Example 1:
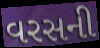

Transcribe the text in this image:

વરસની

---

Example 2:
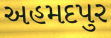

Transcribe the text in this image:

અહમદપુર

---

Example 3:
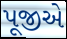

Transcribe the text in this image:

પૂજીએ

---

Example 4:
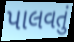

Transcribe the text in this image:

પાલવતું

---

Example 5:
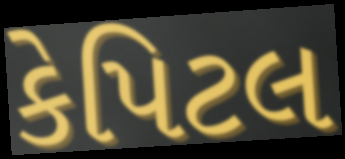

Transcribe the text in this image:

કેપિટલ